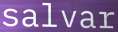
salvar